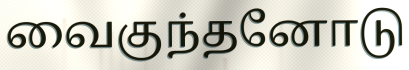
வைகுந்தனோடு